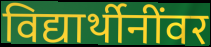
विद्यार्थीनींवर